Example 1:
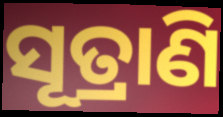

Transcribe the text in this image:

ସୂତ୍ରାଣି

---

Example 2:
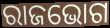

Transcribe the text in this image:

ରାଜଭୋଗ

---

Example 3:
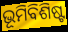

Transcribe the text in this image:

ଭୂମିବିଶିଷ୍ଟ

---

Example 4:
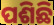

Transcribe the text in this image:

ପଶିଛି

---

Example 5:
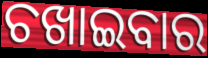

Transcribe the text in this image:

ଚଖାଇବାର